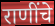
राणींचे